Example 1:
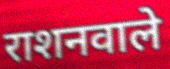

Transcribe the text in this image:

राशनवाले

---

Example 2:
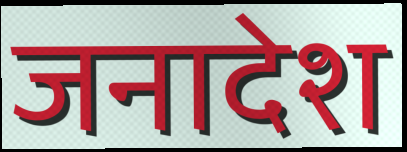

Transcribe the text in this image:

जनादेश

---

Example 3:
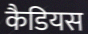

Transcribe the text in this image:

कैडियस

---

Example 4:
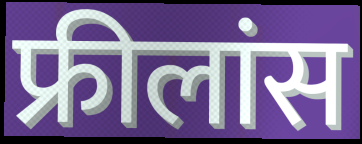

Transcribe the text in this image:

फ्रीलांस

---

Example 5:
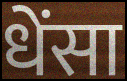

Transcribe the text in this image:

धेंसा